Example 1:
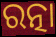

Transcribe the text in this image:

ରତ୍ନା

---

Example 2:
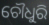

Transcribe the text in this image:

ଚୌଧୁରି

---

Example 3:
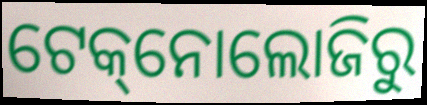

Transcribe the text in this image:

ଟେକ୍‌ନୋଲୋଜିରୁ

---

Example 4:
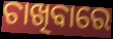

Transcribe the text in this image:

ଚାଖିବାରେ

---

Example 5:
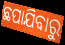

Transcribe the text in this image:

ଛପାଯିବାରୁ